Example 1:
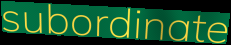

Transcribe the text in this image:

subordinate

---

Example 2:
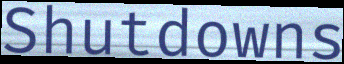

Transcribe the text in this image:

Shutdowns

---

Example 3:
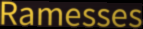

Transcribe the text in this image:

Ramesses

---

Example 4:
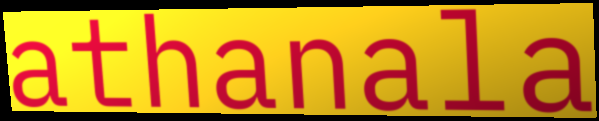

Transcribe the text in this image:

athanala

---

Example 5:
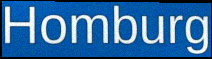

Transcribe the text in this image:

Homburg